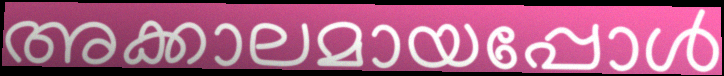
അക്കാലമായപ്പോൾ